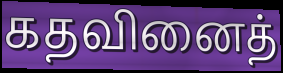
கதவினைத்